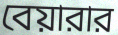
বেয়ারার